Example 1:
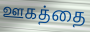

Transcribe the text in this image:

ஊகத்தை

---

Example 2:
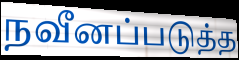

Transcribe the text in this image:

நவீனப்படுத்த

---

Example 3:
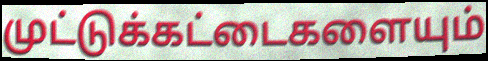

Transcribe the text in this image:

முட்டுக்கட்டைகளையும்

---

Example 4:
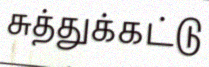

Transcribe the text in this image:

சுத்துக்கட்டு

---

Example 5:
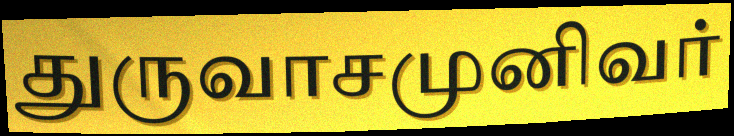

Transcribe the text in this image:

துருவாசமுனிவர்